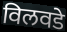
विलवडे